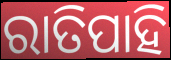
ରାତିପାହି